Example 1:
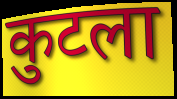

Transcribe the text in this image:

कुटला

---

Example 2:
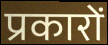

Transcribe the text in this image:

प्रकारों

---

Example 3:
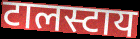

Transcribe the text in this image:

टालस्टाय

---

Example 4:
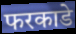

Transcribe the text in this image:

फरकाडे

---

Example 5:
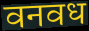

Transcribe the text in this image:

वनवध